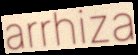
arrhiza